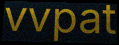
vvpat